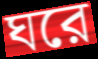
ঘরে